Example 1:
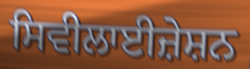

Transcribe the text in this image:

ਸਿਵੀਲਾਈਜ਼ੇਸ਼ਨ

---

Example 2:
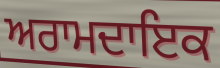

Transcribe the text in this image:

ਅਰਾਮਦਾਇਕ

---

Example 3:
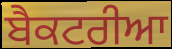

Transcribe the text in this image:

ਬੈਕਟਰੀਆ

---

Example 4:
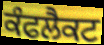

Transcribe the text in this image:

ਕੰਫਲੈਕਟ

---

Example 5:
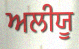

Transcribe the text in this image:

ਅਲੀਯੂ